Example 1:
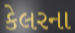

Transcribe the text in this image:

કેલરના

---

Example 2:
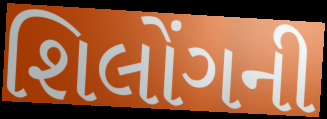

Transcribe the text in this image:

શિલોંગની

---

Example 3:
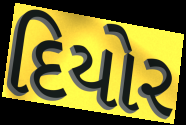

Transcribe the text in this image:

દિયોર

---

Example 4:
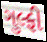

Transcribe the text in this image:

ગુલ્ફી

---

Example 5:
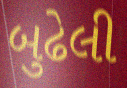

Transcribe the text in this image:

બુઢેલી